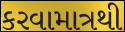
કરવામાત્રથી